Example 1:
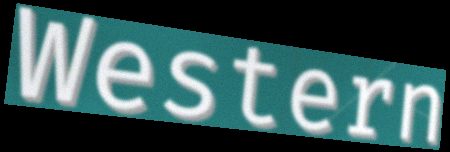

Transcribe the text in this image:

Western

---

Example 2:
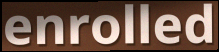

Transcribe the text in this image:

enrolled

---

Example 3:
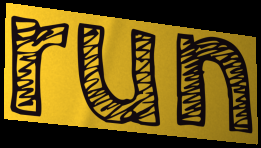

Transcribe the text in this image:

run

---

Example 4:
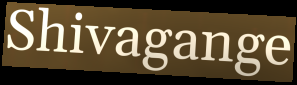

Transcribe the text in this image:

Shivagange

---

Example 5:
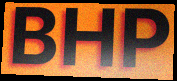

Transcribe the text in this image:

BHP